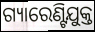
ଗ୍ୟାରେଣ୍ଟିଯୁକ୍ତ